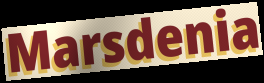
Marsdenia